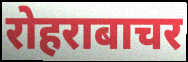
रोहराबाचर